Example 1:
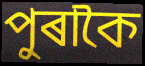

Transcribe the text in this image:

পুৰাকৈ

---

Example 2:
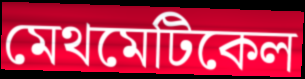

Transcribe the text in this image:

মেথমেটিকেল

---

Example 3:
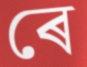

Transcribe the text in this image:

ৰে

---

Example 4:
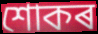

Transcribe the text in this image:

শোকৰ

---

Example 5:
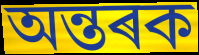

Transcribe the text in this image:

অন্তৰক